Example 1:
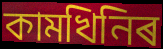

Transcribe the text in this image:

কামখিনিৰ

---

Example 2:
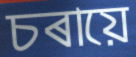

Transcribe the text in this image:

চৰায়ে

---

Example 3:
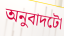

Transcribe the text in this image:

অনুবাদটো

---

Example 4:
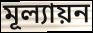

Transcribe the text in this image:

মূল্যায়ন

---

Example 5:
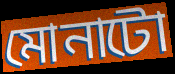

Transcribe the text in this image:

মোনাটো